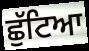
ਛੁੱਟਿਆ